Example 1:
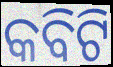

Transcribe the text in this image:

କବିଟି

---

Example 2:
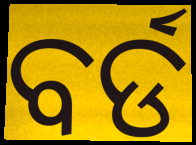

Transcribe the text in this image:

ବର୍ଡ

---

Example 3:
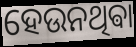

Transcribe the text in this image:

ହେଉନଥିଵା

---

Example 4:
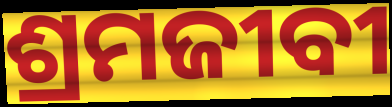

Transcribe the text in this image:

ଶ୍ରମଜୀବୀ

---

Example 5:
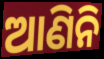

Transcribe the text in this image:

ଆଣିନି